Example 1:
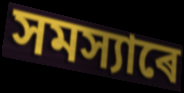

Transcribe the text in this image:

সমস্যাৰে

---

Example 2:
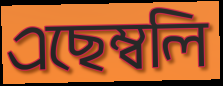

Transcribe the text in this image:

এছেম্বলি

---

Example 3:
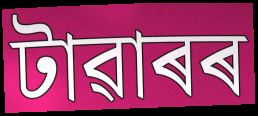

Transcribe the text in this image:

টাৱাৰৰ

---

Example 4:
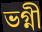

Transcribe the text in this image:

ভগ্নী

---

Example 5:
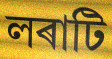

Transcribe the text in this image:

লৰাটি